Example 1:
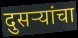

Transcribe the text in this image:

दुसऱ्यांचा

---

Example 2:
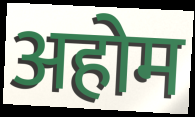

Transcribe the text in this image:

अहोम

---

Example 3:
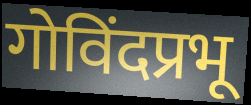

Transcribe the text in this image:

गोविंदप्रभू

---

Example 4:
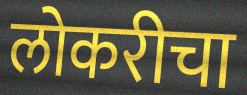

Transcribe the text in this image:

लोकरीचा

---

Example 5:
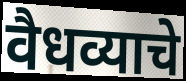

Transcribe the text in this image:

वैधव्याचे